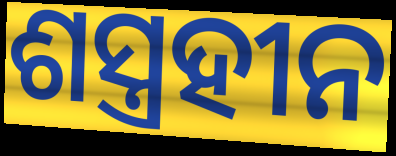
ଶସ୍ତ୍ରହୀନ